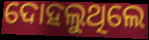
ଦୋହଲୁଥିଲେ